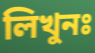
লিখুনঃ